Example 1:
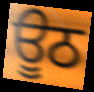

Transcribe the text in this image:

ਊਠ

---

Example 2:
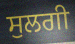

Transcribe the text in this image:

ਸੁਲਗੀ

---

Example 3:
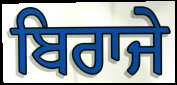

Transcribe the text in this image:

ਬਿਰਾਜੇ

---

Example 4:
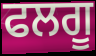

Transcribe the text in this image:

ਫਲਗੂ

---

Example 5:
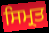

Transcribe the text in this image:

ਸਿਮ੍ਰਤ